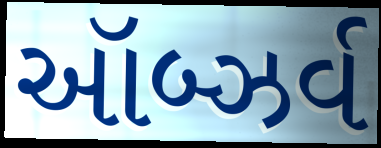
ઑબ્ઝર્વ